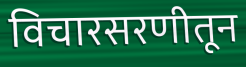
विचारसरणीतून